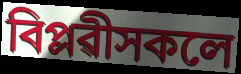
বিপ্লৱীসকলে